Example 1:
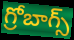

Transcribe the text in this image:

గ్రోబాగ్స్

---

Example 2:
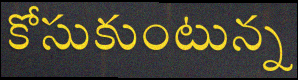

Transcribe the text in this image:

కోసుకుంటున్న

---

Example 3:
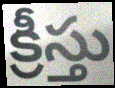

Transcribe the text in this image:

క్రీస్తు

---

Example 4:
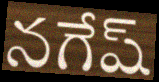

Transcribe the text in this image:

నగేష్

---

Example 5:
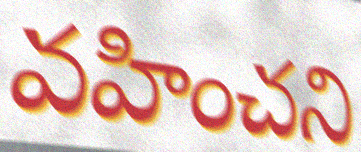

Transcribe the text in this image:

వహించని